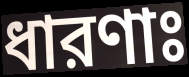
ধারণাঃ